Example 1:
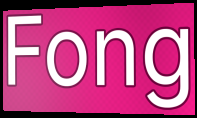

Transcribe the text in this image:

Fong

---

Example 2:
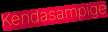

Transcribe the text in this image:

Kendasampige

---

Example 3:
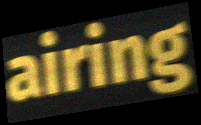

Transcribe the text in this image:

airing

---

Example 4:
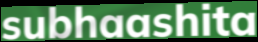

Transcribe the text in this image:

subhaashita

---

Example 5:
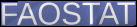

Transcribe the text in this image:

FAOSTAT